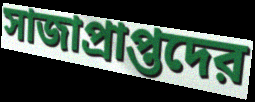
সাজাপ্রাপ্তদের